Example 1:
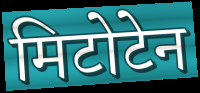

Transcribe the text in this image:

मिटोटेन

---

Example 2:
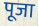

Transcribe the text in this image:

पूजा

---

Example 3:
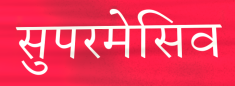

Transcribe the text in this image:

सुपरमेसिव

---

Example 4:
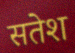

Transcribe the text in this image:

सतेश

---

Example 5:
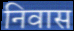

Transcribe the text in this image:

निवास